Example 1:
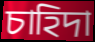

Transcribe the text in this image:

চাহিদা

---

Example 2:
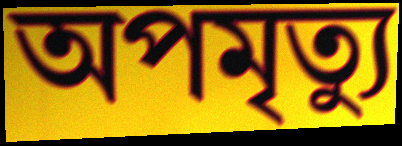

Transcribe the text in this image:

অপমৃত্যু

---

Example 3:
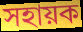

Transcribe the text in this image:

সহায়ক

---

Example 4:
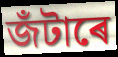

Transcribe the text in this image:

জঁটাৰে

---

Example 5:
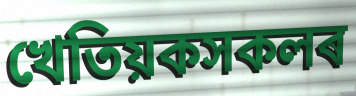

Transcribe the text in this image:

খেতিয়কসকলৰ